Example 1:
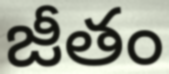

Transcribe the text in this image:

జీతం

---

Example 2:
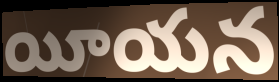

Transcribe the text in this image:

యీయన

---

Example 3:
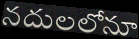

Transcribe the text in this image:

నదులలోనూ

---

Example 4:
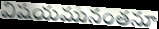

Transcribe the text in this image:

విషయమునంతనూ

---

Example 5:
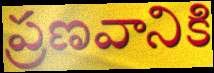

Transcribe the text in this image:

ప్రణవానికి